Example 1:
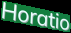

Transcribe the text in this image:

Horatio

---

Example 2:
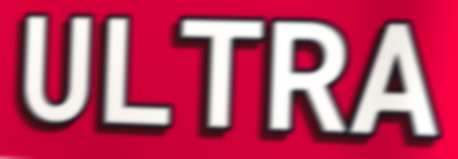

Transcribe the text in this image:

ULTRA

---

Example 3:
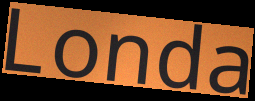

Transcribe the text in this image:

Londa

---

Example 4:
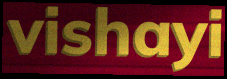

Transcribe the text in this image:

vishayi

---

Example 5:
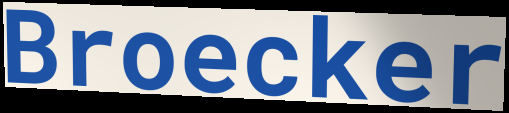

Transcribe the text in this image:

Broecker